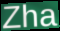
Zha